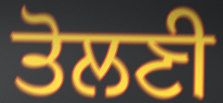
ਤੋਲਣੀ